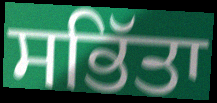
ਸਭਿੱਤਾ